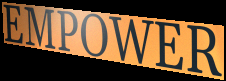
EMPOWER